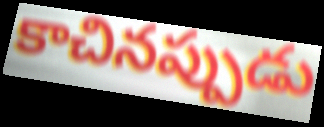
కాచినప్పుడు